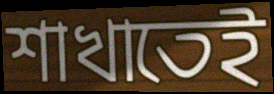
শাখাতেই